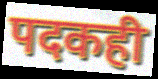
पदकही